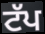
ਟੱਪ